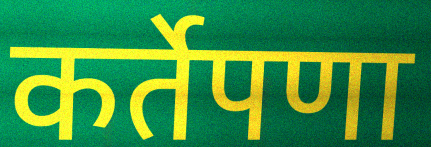
कर्तेपणा